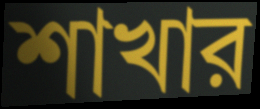
শাখার